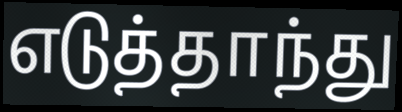
எடுத்தாந்து